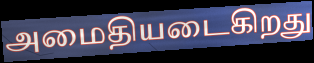
அமைதியடைகிறது